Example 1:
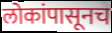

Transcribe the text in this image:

लोकांपासूनच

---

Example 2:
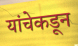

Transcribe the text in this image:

यांचेकडून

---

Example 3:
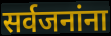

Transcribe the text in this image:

सर्वजनांना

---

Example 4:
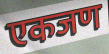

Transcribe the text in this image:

एकजण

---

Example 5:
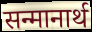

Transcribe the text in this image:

सन्मानार्थ